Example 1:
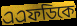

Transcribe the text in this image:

এএফডিকে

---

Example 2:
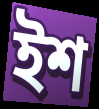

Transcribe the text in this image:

ইশ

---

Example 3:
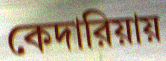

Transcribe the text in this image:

কেদারিয়ায়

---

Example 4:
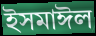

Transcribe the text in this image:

ইসমাঈল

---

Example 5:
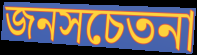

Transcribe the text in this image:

জনসচেতনা